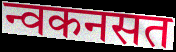
न्वकनसत